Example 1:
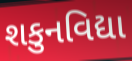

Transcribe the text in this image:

શકુનવિદ્યા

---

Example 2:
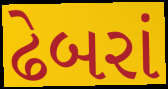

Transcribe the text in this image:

ઢેબરાં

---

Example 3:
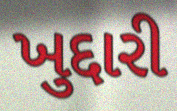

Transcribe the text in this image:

ખુદ્દારી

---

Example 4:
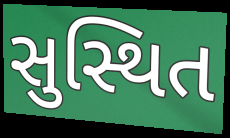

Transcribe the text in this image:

સુસ્થિત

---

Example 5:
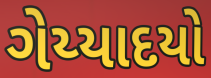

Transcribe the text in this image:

ગેય્યાદયો